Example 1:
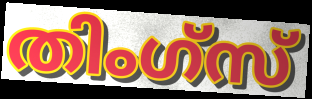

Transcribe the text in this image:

തിംഗ്സ്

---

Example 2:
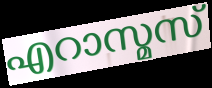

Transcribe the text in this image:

എറാസ്മസ്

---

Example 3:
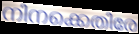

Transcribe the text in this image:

നിനക്കെതിരേ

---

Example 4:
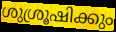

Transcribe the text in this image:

ശുശ്രൂഷിക്കും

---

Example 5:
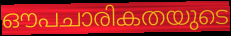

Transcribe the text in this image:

ഔപചാരികതയുടെ